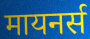
मायनर्स